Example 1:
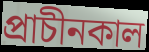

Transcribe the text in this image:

প্রাচীনকাল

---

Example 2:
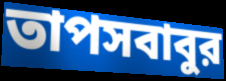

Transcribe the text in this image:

তাপসবাবুর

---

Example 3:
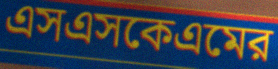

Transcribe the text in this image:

এসএসকেএমের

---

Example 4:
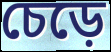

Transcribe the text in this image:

চেড়ে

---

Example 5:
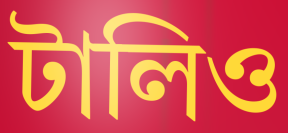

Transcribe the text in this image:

টালিও